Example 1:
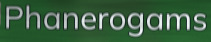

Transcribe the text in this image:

Phanerogams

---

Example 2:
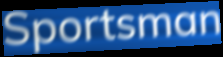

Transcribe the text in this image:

Sportsman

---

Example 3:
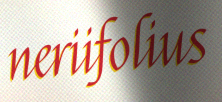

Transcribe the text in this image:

neriifolius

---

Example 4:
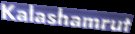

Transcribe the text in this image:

Kalashamrut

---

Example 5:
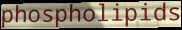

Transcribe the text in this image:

phospholipids